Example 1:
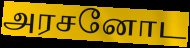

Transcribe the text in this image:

அரசனோட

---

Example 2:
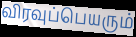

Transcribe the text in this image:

விரவுப்பெயரும்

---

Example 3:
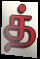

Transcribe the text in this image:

த்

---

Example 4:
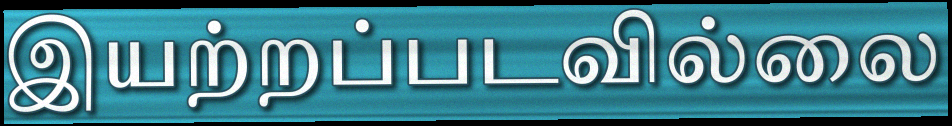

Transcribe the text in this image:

இயற்றப்படவில்லை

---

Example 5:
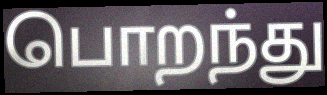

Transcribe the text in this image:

பொறந்து